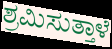
ಶ್ರಮಿಸುತ್ತಾಳೆ